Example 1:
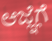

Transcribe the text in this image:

ಆಜ್ಞೆಗೆ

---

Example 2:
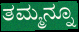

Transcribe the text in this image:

ತಮ್ಮನ್ನೂ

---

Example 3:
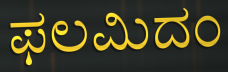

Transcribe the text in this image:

ಫಲಮಿದಂ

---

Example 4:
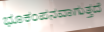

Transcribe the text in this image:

ಭೂಕಂಪನವಾಗುತ್ತದೆ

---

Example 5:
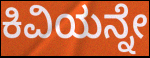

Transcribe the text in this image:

ಕಿವಿಯನ್ನೇ